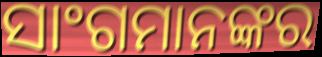
ସାଂଗମାନଙ୍କର